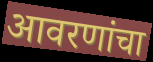
आवरणांचा